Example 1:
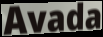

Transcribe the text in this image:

Avada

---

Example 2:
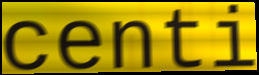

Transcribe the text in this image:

centi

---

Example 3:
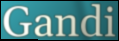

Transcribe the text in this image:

Gandi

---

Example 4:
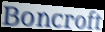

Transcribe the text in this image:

Boncroft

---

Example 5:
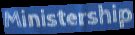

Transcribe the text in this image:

Ministership